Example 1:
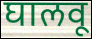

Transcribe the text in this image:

घालवू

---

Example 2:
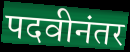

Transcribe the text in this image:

पदवीनंतर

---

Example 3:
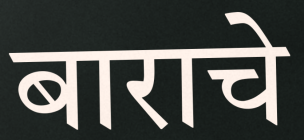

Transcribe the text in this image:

बाराचे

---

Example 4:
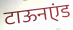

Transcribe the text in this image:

टाऊनएंड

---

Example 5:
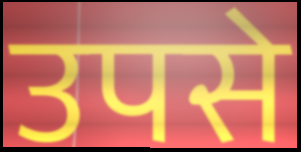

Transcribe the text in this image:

उपसे